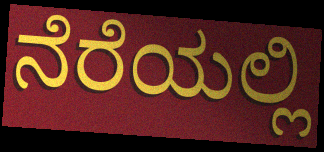
ನೆರೆಯಲ್ಲಿ